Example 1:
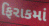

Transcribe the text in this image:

ફિરાકમાં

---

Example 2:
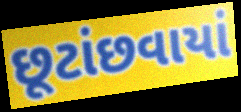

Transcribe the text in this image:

છૂટાંછવાયાં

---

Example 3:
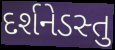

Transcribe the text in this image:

દર્શનેડસ્તુ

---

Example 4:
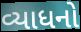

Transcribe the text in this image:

વ્યાધનો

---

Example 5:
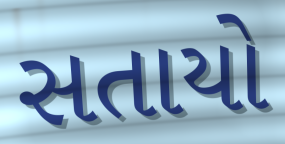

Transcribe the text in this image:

સતાયો